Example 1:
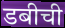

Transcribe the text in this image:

डबीची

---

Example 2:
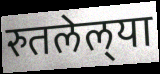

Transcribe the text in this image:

रुतलेल्या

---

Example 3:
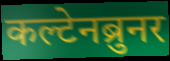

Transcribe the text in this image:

कल्टेनब्रुनर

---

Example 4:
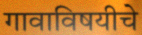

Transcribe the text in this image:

गावाविषयीचे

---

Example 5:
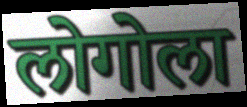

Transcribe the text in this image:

लोगोला